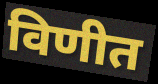
विणीत